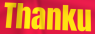
Thanku